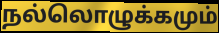
நல்லொழுக்கமும்